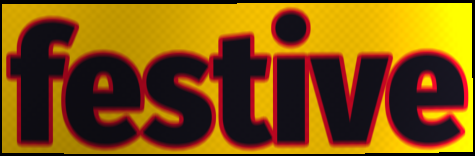
festive